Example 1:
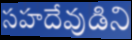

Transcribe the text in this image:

సహదేవుడిని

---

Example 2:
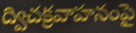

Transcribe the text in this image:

ద్విచక్రవాహనంపై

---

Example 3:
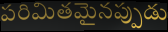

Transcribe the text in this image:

పరిమితమైనప్పుడు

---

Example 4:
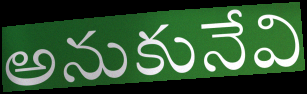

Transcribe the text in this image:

అనుకునేవి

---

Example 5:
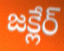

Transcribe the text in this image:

జక్లేర్